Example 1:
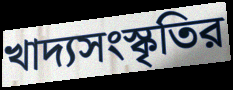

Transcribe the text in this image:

খাদ্যসংস্কৃতির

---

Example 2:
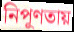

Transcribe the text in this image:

নিপূণতায়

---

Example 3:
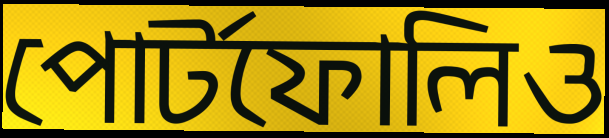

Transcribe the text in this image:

পোর্টফোলিও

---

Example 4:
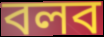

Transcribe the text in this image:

বলব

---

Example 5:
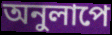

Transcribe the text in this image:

অনুলাপে